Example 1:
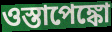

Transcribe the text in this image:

ওস্তাপেঙ্কো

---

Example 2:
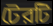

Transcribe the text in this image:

টেরটি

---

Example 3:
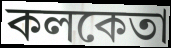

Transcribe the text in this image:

কলকেতা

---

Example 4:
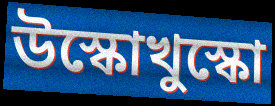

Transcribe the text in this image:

উস্কোখুস্কো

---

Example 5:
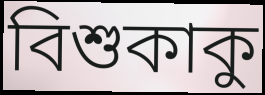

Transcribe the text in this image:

বিশুকাকু